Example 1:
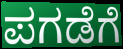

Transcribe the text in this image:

ಪಗಡೆಗೆ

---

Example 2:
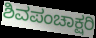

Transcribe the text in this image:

ಶಿವಪಂಚಾಕ್ಷರಿ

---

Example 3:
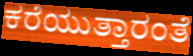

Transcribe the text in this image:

ಕರೆಯುತ್ತಾರಂತೆ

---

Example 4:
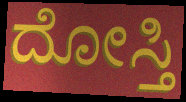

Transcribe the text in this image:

ದೋಸ್ತಿ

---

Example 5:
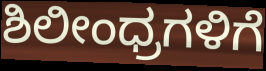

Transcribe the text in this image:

ಶಿಲೀಂಧ್ರಗಳಿಗೆ